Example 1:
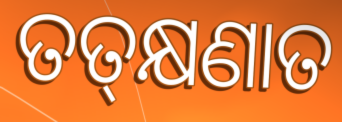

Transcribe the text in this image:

ତତ୍‍କ୍ଷଣାତ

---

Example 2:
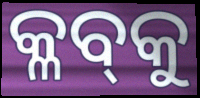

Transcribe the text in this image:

କ୍ଳବ୍‌କୁ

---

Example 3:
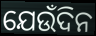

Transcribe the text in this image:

ଯେଉଁଦିନ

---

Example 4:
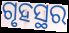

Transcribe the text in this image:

ଗୃହସ୍ଥର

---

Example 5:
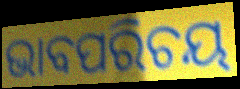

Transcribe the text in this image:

ଭାବପରିଚୟ